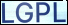
LGPL